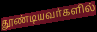
தூண்டியவர்களில்